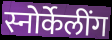
स्नोर्केलींग